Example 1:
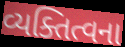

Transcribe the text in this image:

વ્યક્તિત્વના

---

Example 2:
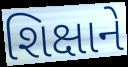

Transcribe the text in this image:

શિક્ષાને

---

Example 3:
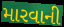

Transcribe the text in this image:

મારવાની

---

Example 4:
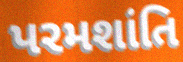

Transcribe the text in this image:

પરમશાંતિ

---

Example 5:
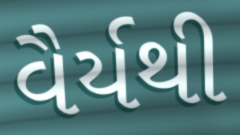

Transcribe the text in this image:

વૈર્યથી